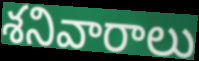
శనివారాలు